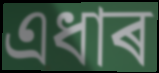
এধাৰ